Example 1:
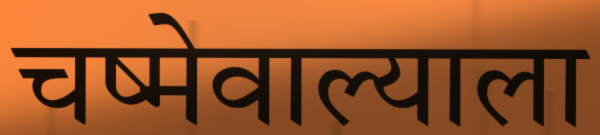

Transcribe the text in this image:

चष्मेवाल्याला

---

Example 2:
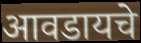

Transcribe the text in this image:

आवडायचे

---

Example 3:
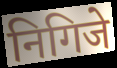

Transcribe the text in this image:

निगिजे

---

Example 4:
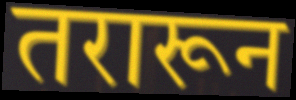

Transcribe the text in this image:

तरारून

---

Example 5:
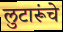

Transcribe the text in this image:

लुटारूंचे